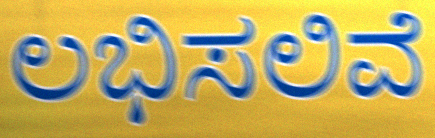
ಲಭಿಸಲಿವೆ